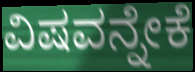
ವಿಷವನ್ನೇಕೆ